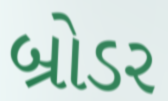
બ્રોડર